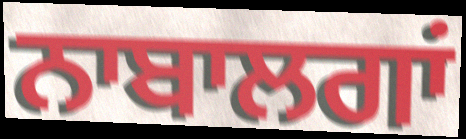
ਨਾਬਾਲਗਾਂ